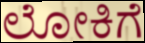
ಲೋಕಿಗೆ